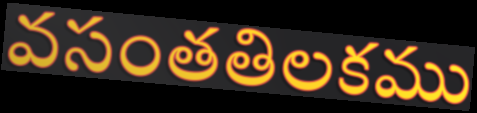
వసంతతిలకము